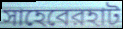
সাহেবেরহাট